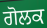
ਗੋਲਕ